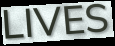
LIVES